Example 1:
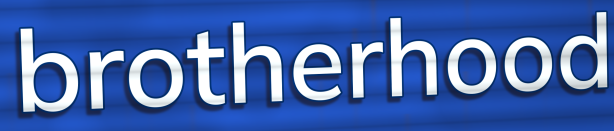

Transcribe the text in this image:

brotherhood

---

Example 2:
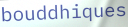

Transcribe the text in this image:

bouddhiques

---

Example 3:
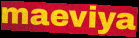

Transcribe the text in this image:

maeviya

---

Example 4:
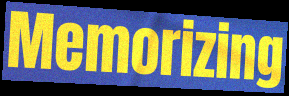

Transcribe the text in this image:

Memorizing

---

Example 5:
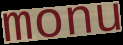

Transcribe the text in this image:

monu